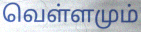
வெள்ளமும்